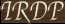
IRDP